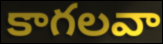
కాగలవా